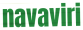
navaviri